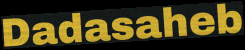
Dadasaheb